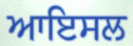
ਆਇਸਲ